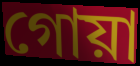
গোয়া